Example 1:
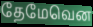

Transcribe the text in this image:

தேமேவென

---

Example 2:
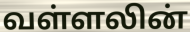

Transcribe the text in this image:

வள்ளலின்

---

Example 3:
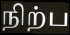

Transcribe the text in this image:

நிற்ப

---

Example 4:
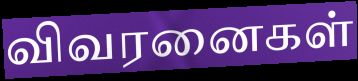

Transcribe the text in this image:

விவரனைகள்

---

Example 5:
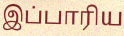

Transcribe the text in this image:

இப்பாரிய